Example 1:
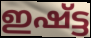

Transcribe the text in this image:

ഇഷ്ട്ട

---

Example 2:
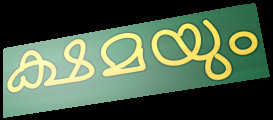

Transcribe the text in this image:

ക്ഷമയും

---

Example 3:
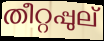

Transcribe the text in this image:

തീറ്റപ്പുല്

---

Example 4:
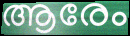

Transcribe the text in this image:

ആരേം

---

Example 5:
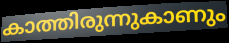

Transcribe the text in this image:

കാത്തിരുന്നുകാണും